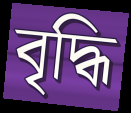
বৃদ্ধি